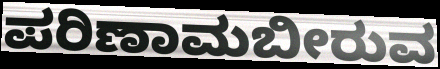
ಪರಿಣಾಮಬೀರುವ